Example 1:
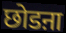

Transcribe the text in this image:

छोडऩा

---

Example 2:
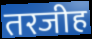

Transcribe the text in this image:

तरजीह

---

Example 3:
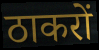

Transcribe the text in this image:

ठाकरों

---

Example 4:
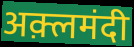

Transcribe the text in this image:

अक़्लमंदी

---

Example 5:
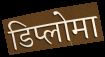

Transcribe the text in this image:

डिप्लोमा